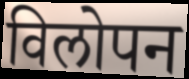
विलोपन